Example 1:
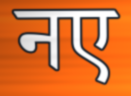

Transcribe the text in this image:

नए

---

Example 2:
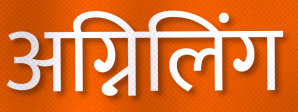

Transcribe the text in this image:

अग्निलिंग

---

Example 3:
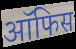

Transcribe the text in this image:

ऑफिस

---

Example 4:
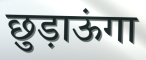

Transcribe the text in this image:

छुड़ाऊंगा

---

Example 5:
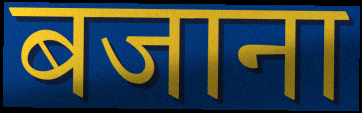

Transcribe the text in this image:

बजाना